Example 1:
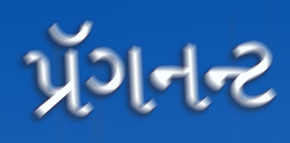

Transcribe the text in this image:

પ્રૅગનન્ટ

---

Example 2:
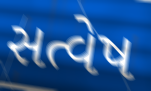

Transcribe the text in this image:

સત્વેષ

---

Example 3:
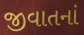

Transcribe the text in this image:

જીવાતનાં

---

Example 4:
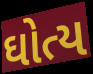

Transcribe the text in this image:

ઘોત્ય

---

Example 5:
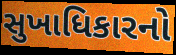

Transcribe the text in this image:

સુખાધિકારનો